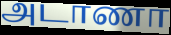
அடாணா